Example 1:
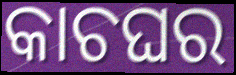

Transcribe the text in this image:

କାଚଘର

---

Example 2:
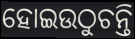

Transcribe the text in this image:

ହୋଇଉଠୁଚନ୍ତି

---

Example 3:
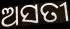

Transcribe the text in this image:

ଅସତୀ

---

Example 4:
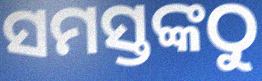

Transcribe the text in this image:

ସମସ୍ତଙ୍କଠୁ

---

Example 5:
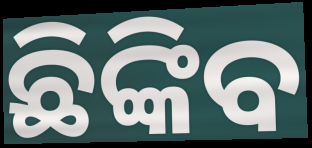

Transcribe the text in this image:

ଛିଙ୍କିବ